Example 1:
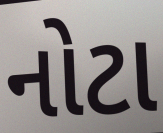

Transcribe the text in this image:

નોટા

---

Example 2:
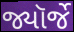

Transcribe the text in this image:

જ્યૉર્જે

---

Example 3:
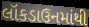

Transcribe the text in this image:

લૉકડાઉનમાંથી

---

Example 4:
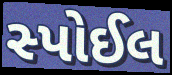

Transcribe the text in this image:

સ્પોઈલ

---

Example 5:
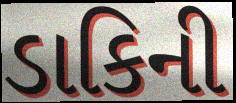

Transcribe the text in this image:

ડાકિની